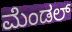
ಮೆಂಡಲ್